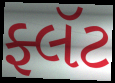
ફ્લૅટ